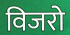
विजरो